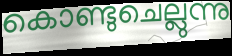
കൊണ്ടുചെല്ലുന്നു